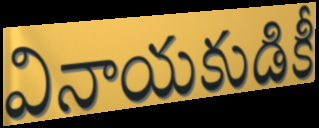
వినాయకుడికీ